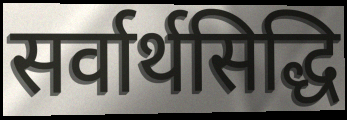
सर्वार्थसिद्धि